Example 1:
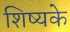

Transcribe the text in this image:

शिष्यके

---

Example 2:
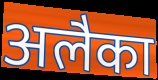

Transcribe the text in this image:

अलैका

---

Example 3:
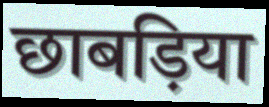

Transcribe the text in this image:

छाबड़िया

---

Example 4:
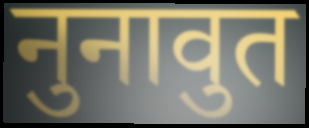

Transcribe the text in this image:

नुनावुत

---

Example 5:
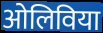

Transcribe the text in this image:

ओलिविया